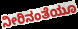
ನೀರಿನಂತೆಯೂ